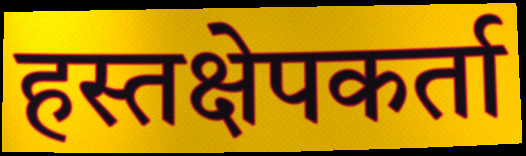
हस्तक्षेपकर्ता